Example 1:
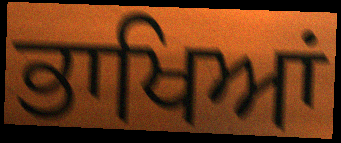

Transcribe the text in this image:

ਭਾਖਿਆਂ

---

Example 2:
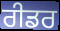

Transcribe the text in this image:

ਰੀਡਰ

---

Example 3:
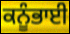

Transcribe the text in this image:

ਕਨੂੰਭਾਈ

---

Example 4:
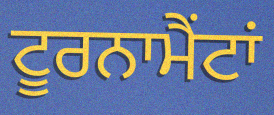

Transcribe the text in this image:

ਟੂਰਨਾਮੈਂਟਾਂ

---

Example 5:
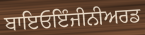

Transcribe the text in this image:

ਬਾਇਓਇੰਜੀਨੀਅਰਡ